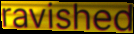
ravished